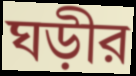
ঘড়ীর